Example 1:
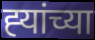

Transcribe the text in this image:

ह्‍यांच्या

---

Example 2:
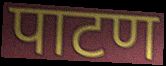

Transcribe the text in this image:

पाटण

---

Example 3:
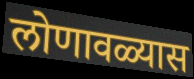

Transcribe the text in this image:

लोणावळ्यास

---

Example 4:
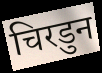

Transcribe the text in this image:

चिरडुन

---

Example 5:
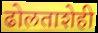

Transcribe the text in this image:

ढोलताशेही